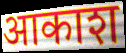
आकाश